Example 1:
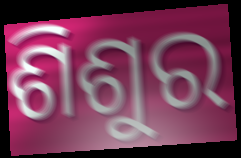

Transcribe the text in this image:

ଶିଶୁର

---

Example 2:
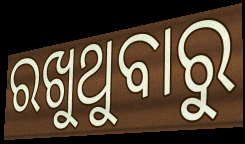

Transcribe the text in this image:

ରଖୁଥୁବାରୁ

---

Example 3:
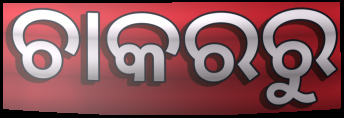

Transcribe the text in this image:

ଚାକରରୁ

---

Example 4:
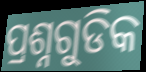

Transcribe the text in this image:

ପ୍ରଶ୍ନଗୁଡିକ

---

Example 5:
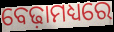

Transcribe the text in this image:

ବେଢ଼ାମଧ୍ୟରେ